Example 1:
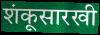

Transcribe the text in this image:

शंकूसारखी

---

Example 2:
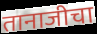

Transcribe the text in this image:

तानाजीचा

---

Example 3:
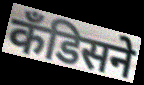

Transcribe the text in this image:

कँडिसने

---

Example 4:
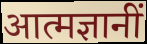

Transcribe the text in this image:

आत्मज्ञानीं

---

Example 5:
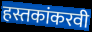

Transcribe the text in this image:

हस्तकांकरवी